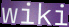
wiki